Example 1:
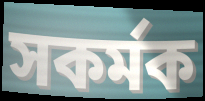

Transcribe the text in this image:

সকর্মক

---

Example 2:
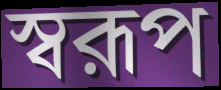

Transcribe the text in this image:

স্বরূপ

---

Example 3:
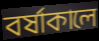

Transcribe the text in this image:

বর্ষাকালে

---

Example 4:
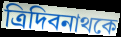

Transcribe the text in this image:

ত্রিদিবনাথকে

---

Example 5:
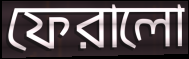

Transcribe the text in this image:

ফেরালো